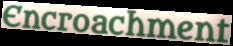
Encroachment